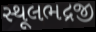
સ્થૂલભદ્રજી